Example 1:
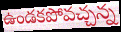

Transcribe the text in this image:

ఉండకపోవచ్చన్న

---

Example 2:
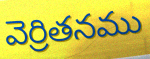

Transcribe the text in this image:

వెర్రితనము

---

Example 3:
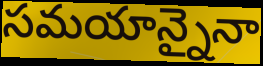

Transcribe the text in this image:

సమయాన్నైనా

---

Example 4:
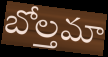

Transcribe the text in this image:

బోల్తమా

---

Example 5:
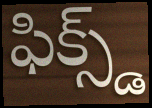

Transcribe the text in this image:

ఫిక్స్డ్